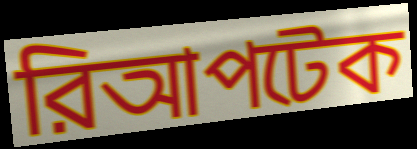
রিআপটেক